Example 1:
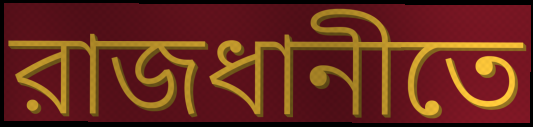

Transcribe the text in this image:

রাজধানীতে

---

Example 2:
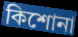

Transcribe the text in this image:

কিশোনা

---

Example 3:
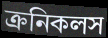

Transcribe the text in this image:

ক্রনিকলস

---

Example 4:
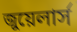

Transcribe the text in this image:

জুয়েলার্স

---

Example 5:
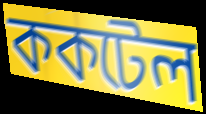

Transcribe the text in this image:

ককটেল